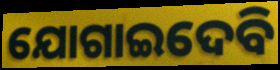
ଯୋଗାଇଦେବି